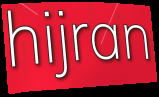
hijran